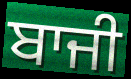
ਬਾਜੀ